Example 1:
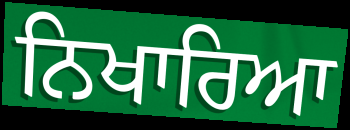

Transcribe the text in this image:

ਨਿਖਾਰਿਆ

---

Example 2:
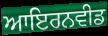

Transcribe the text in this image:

ਆਇਰਨਵੀਡ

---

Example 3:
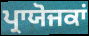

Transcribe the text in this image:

ਪ੍ਰਾਯੋਜਕਾਂ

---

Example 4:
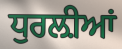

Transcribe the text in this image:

ਧੁਰਲ਼ੀਆਂ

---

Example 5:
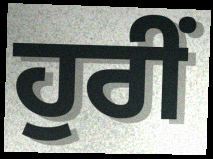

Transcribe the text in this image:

ਹੁਰੀਂ